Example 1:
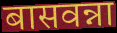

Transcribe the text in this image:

बासवन्ना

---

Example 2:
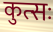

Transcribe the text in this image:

कुत्सः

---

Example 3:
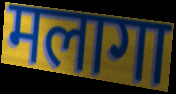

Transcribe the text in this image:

मलागा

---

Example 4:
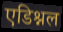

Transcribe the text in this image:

एडिश्नल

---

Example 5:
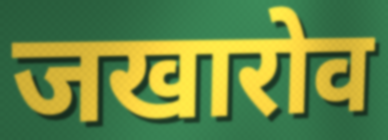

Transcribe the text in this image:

जखारोव